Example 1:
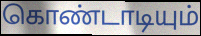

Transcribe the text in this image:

கொண்டாடியும்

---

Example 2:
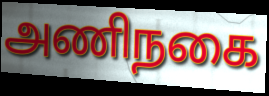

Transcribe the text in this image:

அணிநகை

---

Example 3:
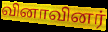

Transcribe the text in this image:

வினாவினர்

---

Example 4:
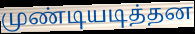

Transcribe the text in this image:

முண்டியடித்தன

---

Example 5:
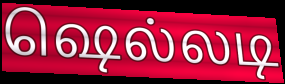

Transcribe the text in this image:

ஷெல்லடி